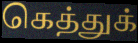
கெத்துக்